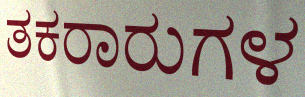
ತಕರಾರುಗಳ